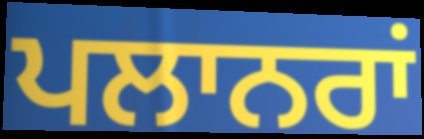
ਪਲਾਨਰਾਂ